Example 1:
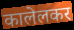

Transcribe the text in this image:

कालेलकर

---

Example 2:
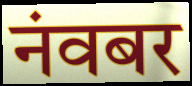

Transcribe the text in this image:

नंवबर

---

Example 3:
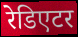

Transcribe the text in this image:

रेडिएटर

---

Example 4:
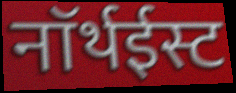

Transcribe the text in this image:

नॉर्थईस्‍ट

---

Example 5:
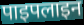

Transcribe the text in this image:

पाइपलाइन